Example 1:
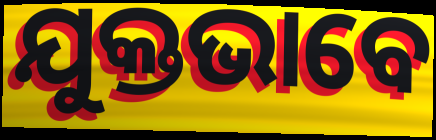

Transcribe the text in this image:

ଯୁକ୍ତଭାବେ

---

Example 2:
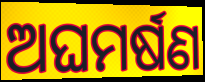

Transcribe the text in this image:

ଅଘମର୍ଷଣ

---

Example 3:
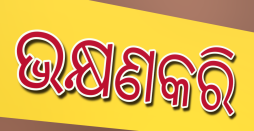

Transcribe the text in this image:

ଭକ୍ଷଣକରି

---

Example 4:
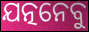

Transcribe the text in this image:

ଯତ୍ନନେବୁ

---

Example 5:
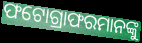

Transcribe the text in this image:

ଫଟୋଗ୍ରାଫରମାନଙ୍କୁ